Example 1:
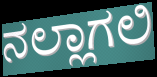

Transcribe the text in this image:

ನಲ್ಲಾಗಲಿ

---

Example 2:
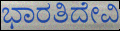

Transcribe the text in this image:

ಭಾರತಿದೇವಿ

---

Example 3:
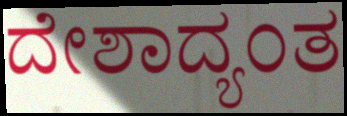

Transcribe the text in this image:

ದೇಶಾದ್ಯಂತ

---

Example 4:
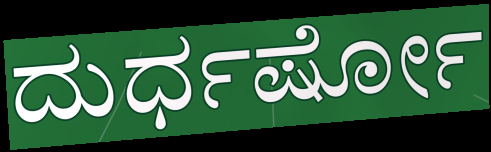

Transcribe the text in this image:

ದುರ್ಧರ್ಷೋ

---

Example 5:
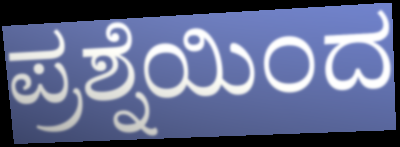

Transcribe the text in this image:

ಪ್ರಶ್ನೆಯಿಂದ